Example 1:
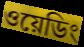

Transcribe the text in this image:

ওয়েডিং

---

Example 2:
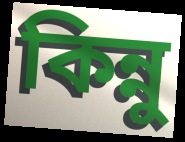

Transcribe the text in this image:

কিন্নু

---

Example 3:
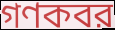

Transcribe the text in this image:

গণকবর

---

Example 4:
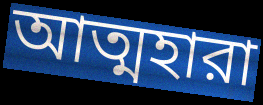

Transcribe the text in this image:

আত্মহারা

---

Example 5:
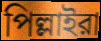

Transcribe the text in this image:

পিল্লাইরা